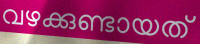
വഴക്കുണ്ടായത്